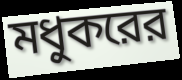
মধুকরের